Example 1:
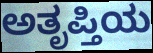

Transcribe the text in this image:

ಅತೃಪ್ತಿಯ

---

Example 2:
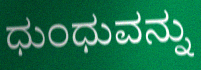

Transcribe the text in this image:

ಧುಂಧುವನ್ನು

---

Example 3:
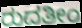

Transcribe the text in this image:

ರುದತೀಂ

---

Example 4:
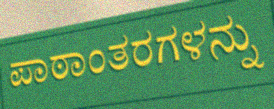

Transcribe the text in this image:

ಪಾಠಾಂತರಗಳನ್ನು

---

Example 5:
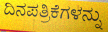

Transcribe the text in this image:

ದಿನಪತ್ರಿಕೆಗಳನ್ನು